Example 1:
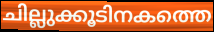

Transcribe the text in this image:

ചില്ലുക്കൂടിനകത്തെ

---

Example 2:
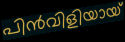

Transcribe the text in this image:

പിൻവിളിയായ്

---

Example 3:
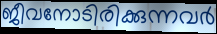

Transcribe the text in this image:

ജീവനോടിരിക്കുന്നവർ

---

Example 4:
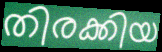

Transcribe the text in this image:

തിരക്കിയ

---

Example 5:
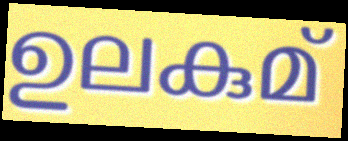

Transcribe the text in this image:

ഉലകുമ്